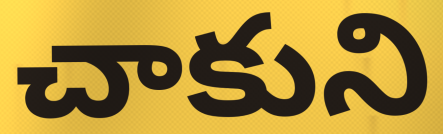
చాకుని